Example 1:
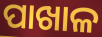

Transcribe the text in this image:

ପାଖାଳ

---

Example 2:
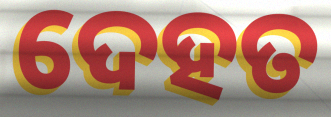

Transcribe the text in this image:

ଦେହତ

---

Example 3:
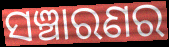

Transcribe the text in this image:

ସଞ୍ଚାରଣର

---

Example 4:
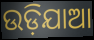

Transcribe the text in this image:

ଉଡ଼ିଯାଆ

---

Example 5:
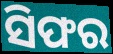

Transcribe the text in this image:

ସିଫର